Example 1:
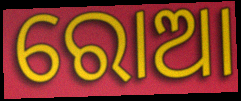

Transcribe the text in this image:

ରୋଆ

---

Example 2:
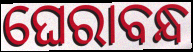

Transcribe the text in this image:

ଘେରାବନ୍ଧ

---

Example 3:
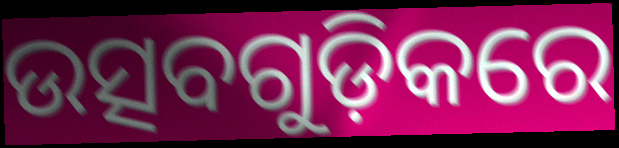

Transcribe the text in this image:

ଉତ୍ସବଗୁଡ଼ିକରେ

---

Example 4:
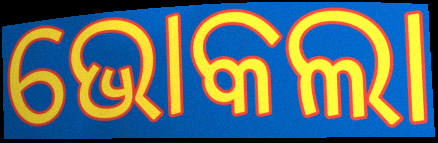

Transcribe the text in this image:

ଭୋକଲା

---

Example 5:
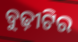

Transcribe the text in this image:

ବୁଢ଼ୀଟିର